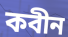
কবীন